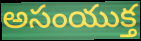
అసంయుక్త